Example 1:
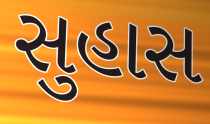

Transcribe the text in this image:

સુહાસ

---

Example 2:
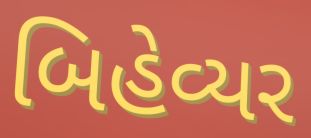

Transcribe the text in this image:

બિહેવ્યર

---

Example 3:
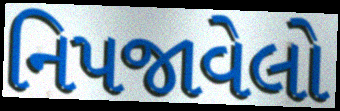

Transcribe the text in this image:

નિપજાવેલો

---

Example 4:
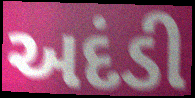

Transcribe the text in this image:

અદંડી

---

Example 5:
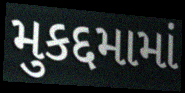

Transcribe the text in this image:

મુકદ્દમામાં